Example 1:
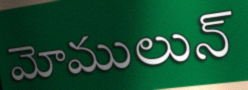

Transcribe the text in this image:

మోములున్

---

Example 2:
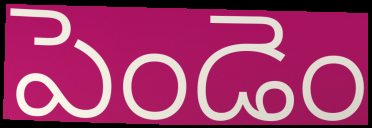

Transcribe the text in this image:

పెండెం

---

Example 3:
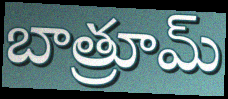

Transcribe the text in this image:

బాత్రూమ్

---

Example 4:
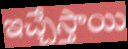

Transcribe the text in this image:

ఇచ్చేస్తాయి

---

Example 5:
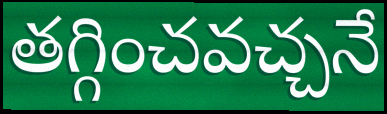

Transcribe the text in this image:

తగ్గించవచ్చనే